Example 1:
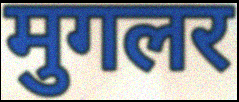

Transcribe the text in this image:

मुगलर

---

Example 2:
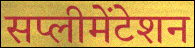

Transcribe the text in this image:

सप्लीमेंटेशन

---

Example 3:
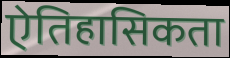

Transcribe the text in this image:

ऐतिहासिकता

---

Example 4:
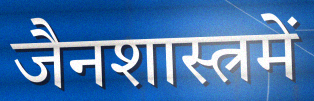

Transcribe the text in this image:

जैनशास्त्रमें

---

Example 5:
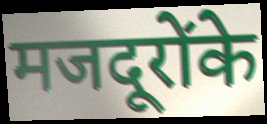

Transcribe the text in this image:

मजदूरोंके